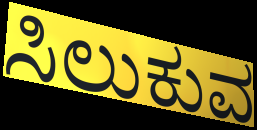
ಸಿಲುಕುವ